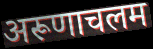
अरूणाचलम